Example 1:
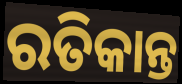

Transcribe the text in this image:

ରତିକାନ୍ତ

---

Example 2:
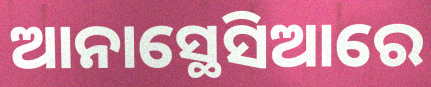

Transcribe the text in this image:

ଆନାସ୍ଥେସିଆରେ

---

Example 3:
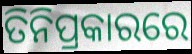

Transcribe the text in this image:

ତିନିପ୍ରକାରରେ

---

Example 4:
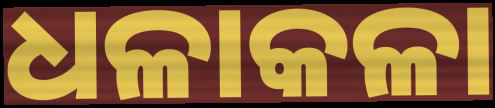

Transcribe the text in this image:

ଧଳାକଳା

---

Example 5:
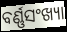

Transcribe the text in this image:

ବର୍ଣ୍ଣସଂଖ୍ୟା